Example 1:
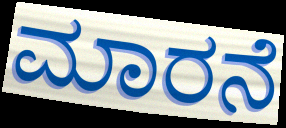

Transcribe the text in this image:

ಮಾರನೆ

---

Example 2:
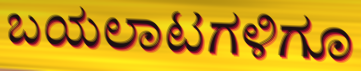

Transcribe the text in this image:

ಬಯಲಾಟಗಳಿಗೂ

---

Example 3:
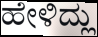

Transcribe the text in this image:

ಹೇಳಿದ್ಲು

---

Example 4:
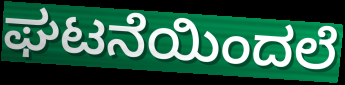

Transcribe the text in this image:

ಘಟನೆಯಿಂದಲೆ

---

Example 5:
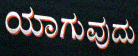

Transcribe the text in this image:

ಯಾಗುವುದು